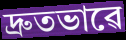
দ্ৰুতভাৱে